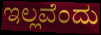
ಇಲ್ಲವೆಂದು